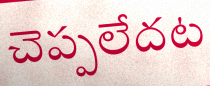
చెప్పలేదట